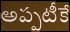
అప్పటీకే